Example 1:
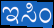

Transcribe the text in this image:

ಇಸಿಂ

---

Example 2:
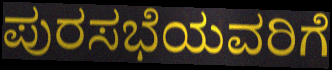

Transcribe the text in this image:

ಪುರಸಭೆಯವರಿಗೆ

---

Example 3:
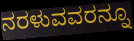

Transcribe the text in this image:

ನರಳುವವರನ್ನೂ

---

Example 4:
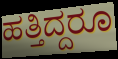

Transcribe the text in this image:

ಹತ್ತಿದ್ದರೂ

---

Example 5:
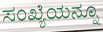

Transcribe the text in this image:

ಸಂಖ್ಯೆಯನ್ನೂ